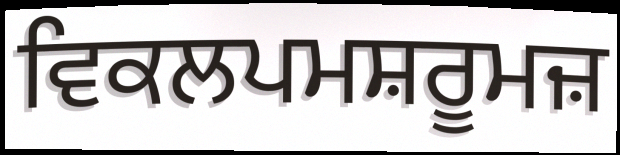
ਵਿਕਲਪਮਸ਼ਰੂਮਜ਼